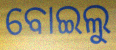
ବୋଇଲୁ